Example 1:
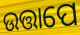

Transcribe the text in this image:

ଉତ୍ତାପେ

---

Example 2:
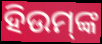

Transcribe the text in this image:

ହିଉମ୍‌ଙ୍କ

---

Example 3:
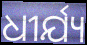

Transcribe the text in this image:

ଧୀର୍ଯ୍ୟ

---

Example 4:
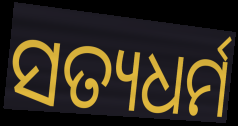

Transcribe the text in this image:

ସତ୍ୟଧର୍ମ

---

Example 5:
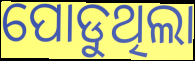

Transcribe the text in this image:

ପୋଡୁଥିଲା